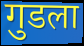
गुडला